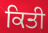
ਕਿਤੀ